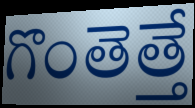
గొంతెత్తే